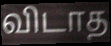
விடாத